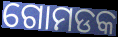
ଗୋମଡକ